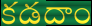
కడదాం